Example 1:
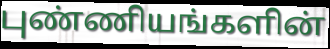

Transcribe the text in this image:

புண்ணியங்களின்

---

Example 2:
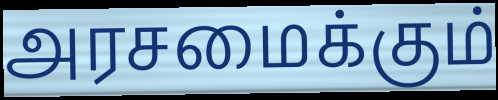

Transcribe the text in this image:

அரசமைக்கும்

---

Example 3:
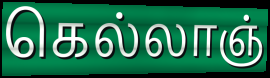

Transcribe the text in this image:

கெல்லாஞ்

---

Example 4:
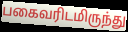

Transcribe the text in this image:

பகைவரிடமிருந்து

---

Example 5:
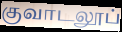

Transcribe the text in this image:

குவாடலூப்